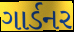
ગાર્ડનર